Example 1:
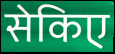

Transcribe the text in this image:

सेकिए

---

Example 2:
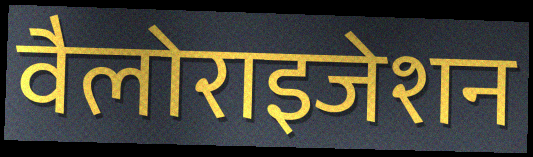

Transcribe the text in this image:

वैलोराइजेशन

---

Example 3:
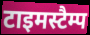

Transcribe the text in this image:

टाइमस्टैम्प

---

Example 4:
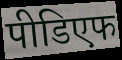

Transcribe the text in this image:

पीडिएफ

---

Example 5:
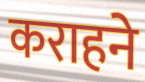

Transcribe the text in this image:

कराहने